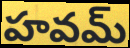
హవమ్